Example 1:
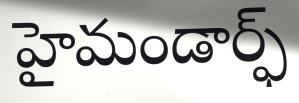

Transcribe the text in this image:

హైమండార్ఫ్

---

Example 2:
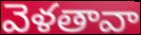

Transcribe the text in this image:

వెళతావా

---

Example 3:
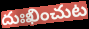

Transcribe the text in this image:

దుఃఖించుట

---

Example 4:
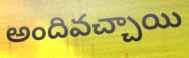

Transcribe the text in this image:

అందివచ్చాయి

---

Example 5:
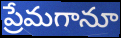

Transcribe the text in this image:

ప్రేమగానూ